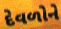
દેવળોને